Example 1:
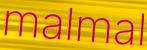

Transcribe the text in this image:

malmal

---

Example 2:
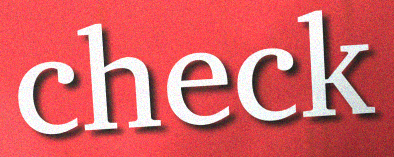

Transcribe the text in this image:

check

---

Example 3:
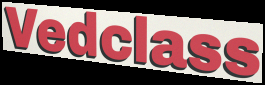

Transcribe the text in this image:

Vedclass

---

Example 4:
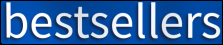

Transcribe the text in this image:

bestsellers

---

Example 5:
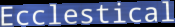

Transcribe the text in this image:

Ecclestical